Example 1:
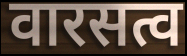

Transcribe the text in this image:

वारसत्व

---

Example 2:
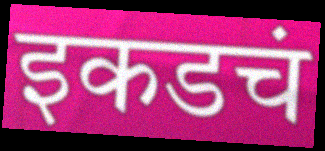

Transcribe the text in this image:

इकडचं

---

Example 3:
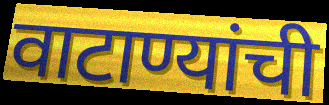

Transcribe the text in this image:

वाटाण्यांची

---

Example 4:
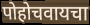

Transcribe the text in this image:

पोहोचवायचा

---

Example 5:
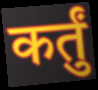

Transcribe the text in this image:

कर्तुं